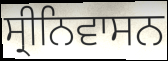
ਸ੍ਰੀਨਿਵਾਸਨ